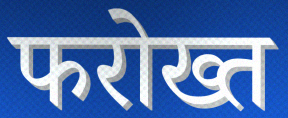
फरोख्त